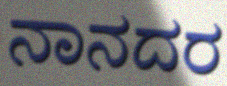
ನಾನದರ